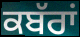
ਕਬੱਰਾਂ